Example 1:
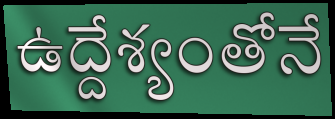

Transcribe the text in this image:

ఉద్దేశ్యంతోనే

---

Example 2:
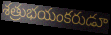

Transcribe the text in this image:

శత్రుభయంకరుడూ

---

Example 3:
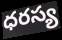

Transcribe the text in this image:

ధరస్య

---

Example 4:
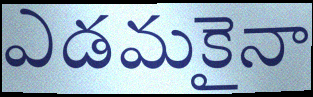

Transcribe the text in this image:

ఎడమకైనా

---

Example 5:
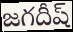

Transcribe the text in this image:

జగదీష్